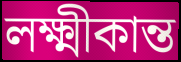
লক্ষ্মীকান্ত